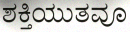
ಶಕ್ತಿಯುತವೂ